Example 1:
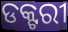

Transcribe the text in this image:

ଡକ୍ଟରୀ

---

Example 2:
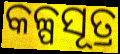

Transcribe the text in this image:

କଳ୍ପସୂତ୍ର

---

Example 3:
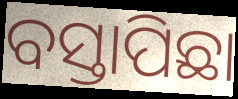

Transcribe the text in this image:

ବସ୍ତାପିଛା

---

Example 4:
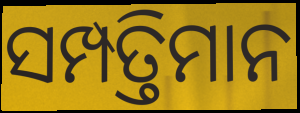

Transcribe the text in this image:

ସମ୍ପତ୍ତିମାନ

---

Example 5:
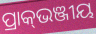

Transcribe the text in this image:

ପ୍ରାକ୍‌ଭଞ୍ଜୀୟ